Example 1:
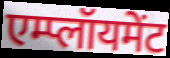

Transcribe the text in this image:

एम्प्लॉयमेंट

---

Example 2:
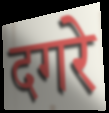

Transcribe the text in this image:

दगरे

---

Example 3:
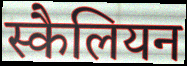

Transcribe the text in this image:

स्कैलियन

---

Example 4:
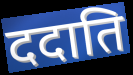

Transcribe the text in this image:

ददाति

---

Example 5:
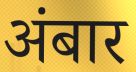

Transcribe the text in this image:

अंबार